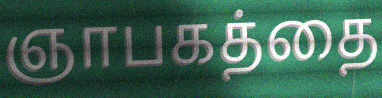
ஞாபகத்தை